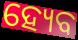
ହ୍ୟେବ